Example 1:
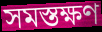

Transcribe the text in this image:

সমস্তক্ষণ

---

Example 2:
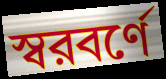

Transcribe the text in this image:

স্বরবর্ণে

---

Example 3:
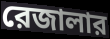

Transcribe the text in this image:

রেজালার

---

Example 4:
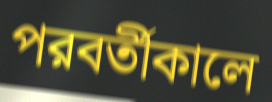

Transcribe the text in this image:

পরবর্তীকালে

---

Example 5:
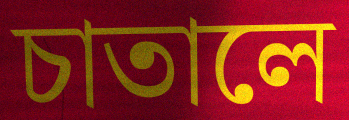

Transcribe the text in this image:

চাতালে